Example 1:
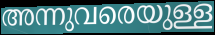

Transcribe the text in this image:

അന്നുവരെയുള്ള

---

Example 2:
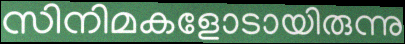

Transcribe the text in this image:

സിനിമകളോടായിരുന്നു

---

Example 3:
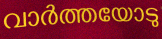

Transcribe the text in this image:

വാർത്തയോടു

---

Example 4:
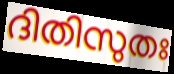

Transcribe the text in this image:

ദിതിസുതഃ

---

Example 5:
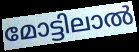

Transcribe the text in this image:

മോട്ടിലാൽ